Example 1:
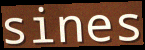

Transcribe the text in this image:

sines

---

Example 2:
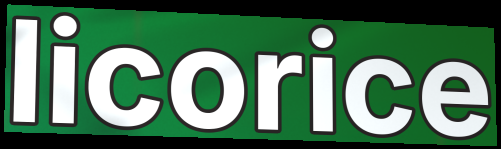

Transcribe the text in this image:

licorice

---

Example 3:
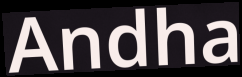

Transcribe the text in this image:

Andha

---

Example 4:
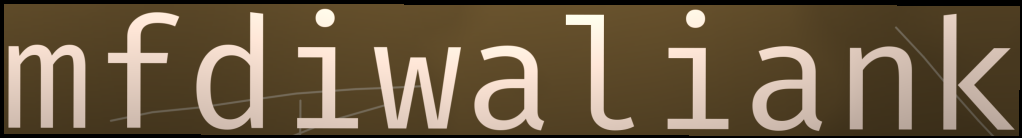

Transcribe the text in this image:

mfdiwaliank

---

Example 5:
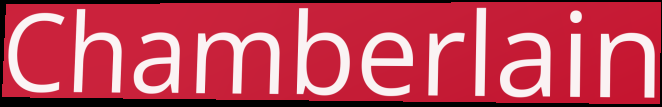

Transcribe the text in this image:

Chamberlain